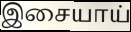
இசையாய்